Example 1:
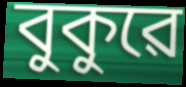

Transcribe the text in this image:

বুকুৱে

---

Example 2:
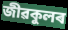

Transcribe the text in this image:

জীৱকুলৰ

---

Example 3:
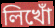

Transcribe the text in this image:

লিখোঁ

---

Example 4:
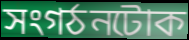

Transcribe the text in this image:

সংগঠনটোক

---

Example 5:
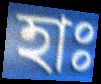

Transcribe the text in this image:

হাঃ